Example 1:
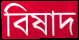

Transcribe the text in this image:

বিষাদ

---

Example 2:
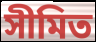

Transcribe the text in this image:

সীমিত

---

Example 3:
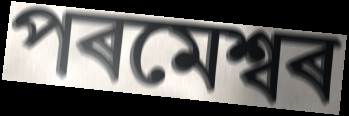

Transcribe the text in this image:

পৰমেশ্বৰ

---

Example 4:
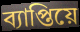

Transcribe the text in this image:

ব্য়াপ্তিয়ে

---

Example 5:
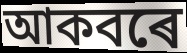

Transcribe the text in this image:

আকবৰে